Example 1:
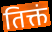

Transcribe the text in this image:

तिक्तं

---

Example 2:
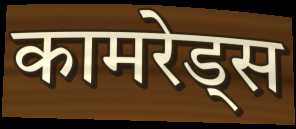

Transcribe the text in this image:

कामरेड्स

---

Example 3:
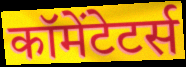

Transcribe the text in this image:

कॉमेंटेटर्स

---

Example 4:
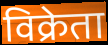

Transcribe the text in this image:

विक्रेता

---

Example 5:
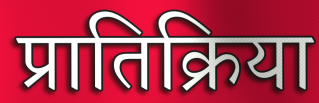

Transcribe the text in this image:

प्रातिक्रिया